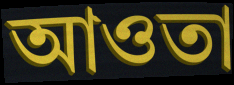
আওতা